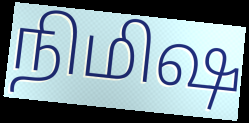
நிமிஷ